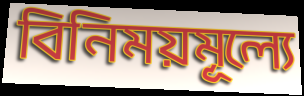
বিনিময়মূল্যে